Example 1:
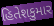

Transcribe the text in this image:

હિતેશકુમાર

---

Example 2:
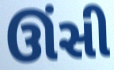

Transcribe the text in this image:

ઊંસી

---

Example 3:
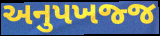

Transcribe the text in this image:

અનુપખજ્જ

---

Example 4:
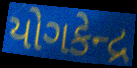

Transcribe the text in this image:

યોગકેન્દ્ર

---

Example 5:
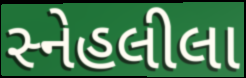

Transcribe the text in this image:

સ્નેહલીલા